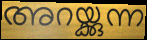
അറയ്ക്കുന്ന